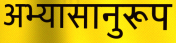
अभ्यासानुरूप